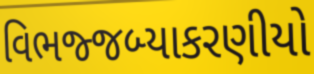
વિભજ્જબ્યાકરણીયો